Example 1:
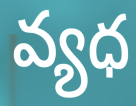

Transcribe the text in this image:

వ్యధ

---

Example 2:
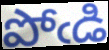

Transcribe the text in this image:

పోఁడి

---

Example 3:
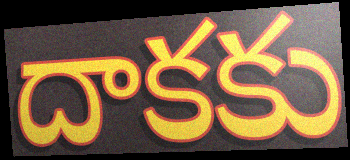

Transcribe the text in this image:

దాకకు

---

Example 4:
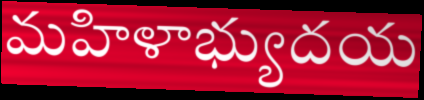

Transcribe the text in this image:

మహిళాభ్యుదయ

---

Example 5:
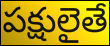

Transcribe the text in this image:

పక్షులైతే